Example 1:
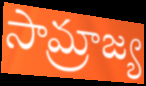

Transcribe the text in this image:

సామ్రాజ్య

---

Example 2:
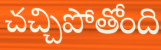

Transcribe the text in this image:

చచ్చిపోతోంది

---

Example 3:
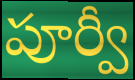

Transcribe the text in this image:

పూర్వీ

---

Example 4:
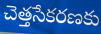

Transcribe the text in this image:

చెత్తసేకరణకు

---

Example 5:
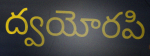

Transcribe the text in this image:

ద్వయోరపి